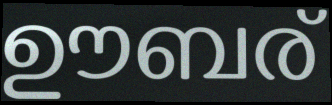
ഊബര്